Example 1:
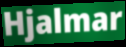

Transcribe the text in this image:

Hjalmar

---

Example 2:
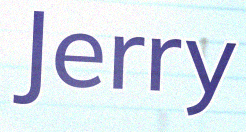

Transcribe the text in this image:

Jerry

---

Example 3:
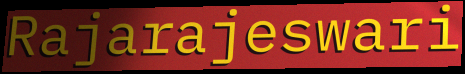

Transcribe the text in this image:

Rajarajeswari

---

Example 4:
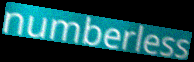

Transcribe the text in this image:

numberless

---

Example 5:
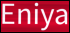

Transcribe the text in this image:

Eniya